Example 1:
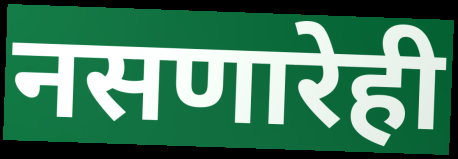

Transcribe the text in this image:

नसणारेही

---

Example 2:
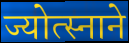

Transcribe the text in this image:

ज्योत्स्नाने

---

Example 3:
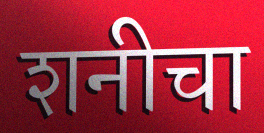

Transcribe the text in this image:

शनीचा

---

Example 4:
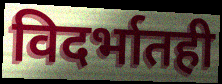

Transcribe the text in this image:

विदर्भातही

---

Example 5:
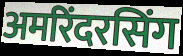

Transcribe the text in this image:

अमरिंदरसिंग